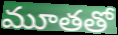
మూతతో